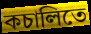
কচালিতে